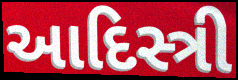
આદિસ્ત્રી